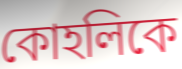
কোহলিকে